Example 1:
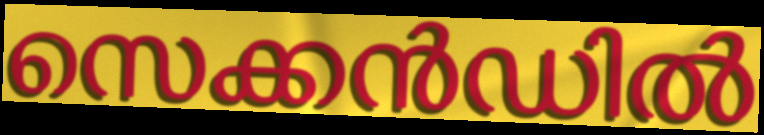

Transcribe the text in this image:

സെക്കൻഡിൽ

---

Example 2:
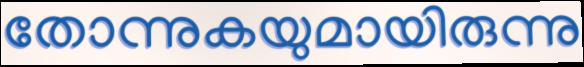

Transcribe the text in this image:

തോന്നുകയുമായിരുന്നു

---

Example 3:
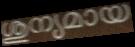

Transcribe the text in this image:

ശുന്യമായ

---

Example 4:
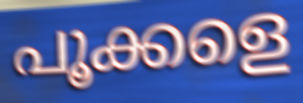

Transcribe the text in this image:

പൂക്കളെ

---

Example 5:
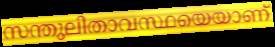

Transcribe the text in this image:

സന്തുലിതാവസ്ഥയെയാണ്